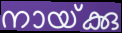
നായ്‌ക്കു